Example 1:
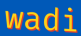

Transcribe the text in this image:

wadi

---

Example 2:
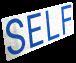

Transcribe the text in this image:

SELF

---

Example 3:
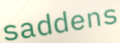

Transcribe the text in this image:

saddens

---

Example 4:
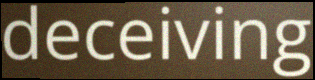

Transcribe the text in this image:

deceiving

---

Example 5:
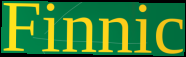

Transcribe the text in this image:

Finnic